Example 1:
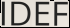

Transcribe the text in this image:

IDEF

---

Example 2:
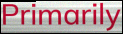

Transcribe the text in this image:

Primarily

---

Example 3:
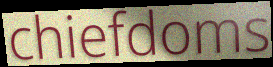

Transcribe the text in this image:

chiefdoms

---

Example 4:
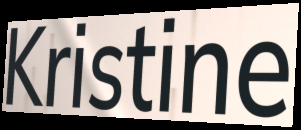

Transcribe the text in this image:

Kristine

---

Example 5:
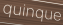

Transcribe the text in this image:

quinque